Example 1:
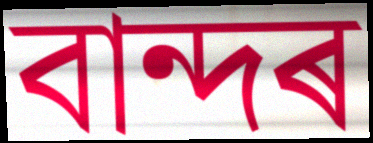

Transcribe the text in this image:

বান্দৰ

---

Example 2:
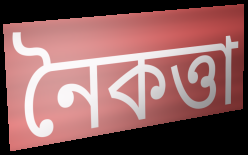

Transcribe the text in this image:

নৈকত্তা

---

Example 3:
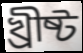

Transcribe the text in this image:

খ্ৰীষ্ট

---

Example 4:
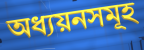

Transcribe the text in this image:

অধ্যয়নসমূহ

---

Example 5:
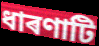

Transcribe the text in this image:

ধাৰণাটি